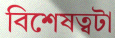
বিশেষত্বটা